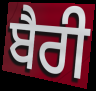
ਬੈਰੀ